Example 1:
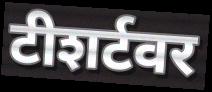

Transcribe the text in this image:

टीशर्टवर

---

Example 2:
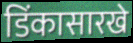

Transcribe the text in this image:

डिंकासारखे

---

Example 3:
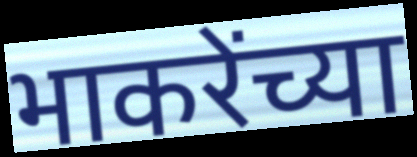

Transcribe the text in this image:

भाकरेंच्या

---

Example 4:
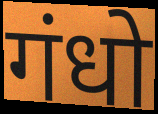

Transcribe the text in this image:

गंधो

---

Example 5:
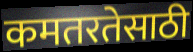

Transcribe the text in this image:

कमतरतेसाठी